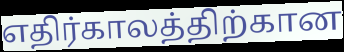
எதிர்காலத்திற்கான